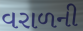
વરાળની